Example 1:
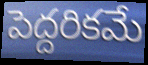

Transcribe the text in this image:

పెద్దరికమే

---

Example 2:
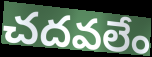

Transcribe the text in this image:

చదవలేం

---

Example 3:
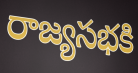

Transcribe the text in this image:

రాజ్యసభకి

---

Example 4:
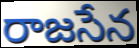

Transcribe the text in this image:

రాజసేన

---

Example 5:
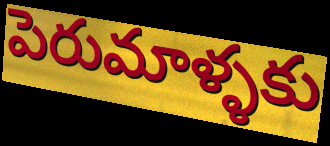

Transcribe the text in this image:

పెరుమాళ్ళకు